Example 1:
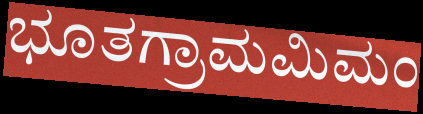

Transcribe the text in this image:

ಭೂತಗ್ರಾಮಮಿಮಂ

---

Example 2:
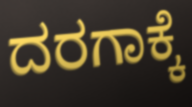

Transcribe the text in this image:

ದರಗಾಕ್ಕೆ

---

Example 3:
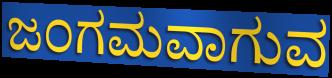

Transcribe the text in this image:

ಜಂಗಮವಾಗುವ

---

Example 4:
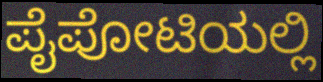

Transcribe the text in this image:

ಪೈಪೋಟಿಯಲ್ಲಿ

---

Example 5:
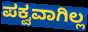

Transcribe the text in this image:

ಪಕ್ವವಾಗಿಲ್ಲ